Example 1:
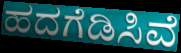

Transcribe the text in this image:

ಹದಗೆಡಿಸಿವೆ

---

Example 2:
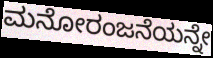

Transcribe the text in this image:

ಮನೋರಂಜನೆಯನ್ನೇ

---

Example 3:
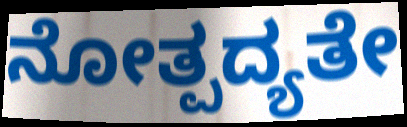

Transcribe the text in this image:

ನೋತ್ಪದ್ಯತೇ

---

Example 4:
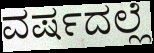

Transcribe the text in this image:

ವರ್ಷದಲ್ಲೆ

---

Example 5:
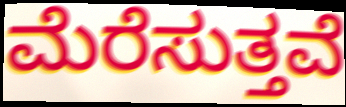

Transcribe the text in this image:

ಮೆರೆಸುತ್ತವೆ